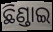
ଛିଣ୍ଡାଇ